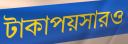
টাকাপয়সারও